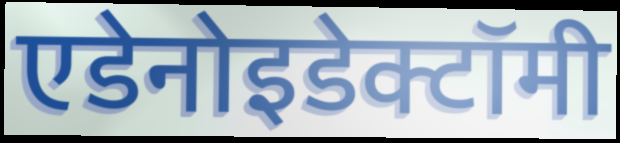
एडेनोइडेक्टॉमी